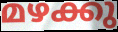
മഴക്കു